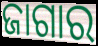
ଜାଗାର